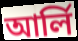
আৰ্লি